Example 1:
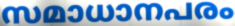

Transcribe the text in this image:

സമാധാനപരം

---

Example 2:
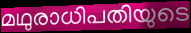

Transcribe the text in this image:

മഥുരാധിപതിയുടെ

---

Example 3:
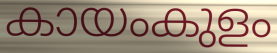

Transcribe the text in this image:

കായംകുളം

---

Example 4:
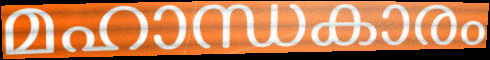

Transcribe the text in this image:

മഹാന്ധകാരം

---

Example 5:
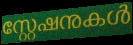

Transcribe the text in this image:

സ്റ്റേഷനുകൾ